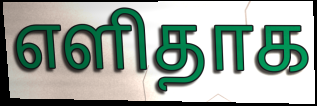
எளிதாக